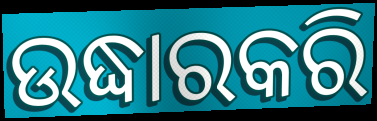
ଉଦ୍ଧାରକରି